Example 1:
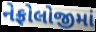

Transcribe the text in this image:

નેફ્રોલોજીમાં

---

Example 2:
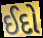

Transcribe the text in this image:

ઈદો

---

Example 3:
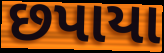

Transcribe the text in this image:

છપાયા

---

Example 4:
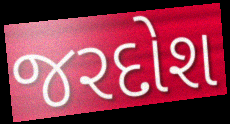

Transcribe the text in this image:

જરદોશ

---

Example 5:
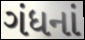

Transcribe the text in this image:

ગંધનાં